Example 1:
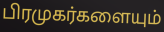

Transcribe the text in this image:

பிரமுகர்களையும்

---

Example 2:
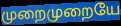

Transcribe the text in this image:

முறைமுறையே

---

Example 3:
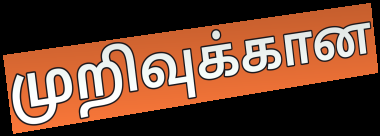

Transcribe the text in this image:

முறிவுக்கான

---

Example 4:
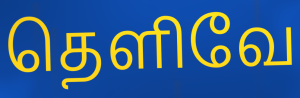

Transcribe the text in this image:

தெளிவே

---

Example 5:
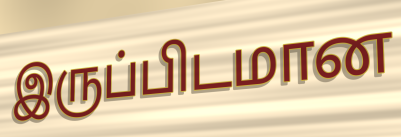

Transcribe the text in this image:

இருப்பிடமான